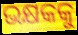
ଭକ୍ଷକକୁ